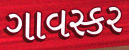
ગાવસ્કર